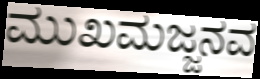
ಮುಖಮಜ್ಜನವ